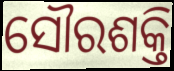
ସୌରଶକ୍ତି